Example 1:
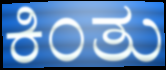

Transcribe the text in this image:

ಕಿಂತು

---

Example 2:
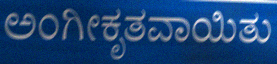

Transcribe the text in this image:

ಅಂಗೀಕೃತವಾಯಿತು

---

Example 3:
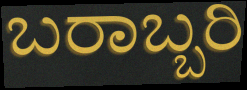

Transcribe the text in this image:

ಬರಾಬ್ಬರಿ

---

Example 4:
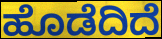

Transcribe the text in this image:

ಹೊಡೆದಿದೆ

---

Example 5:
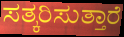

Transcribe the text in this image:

ಸತ್ಕರಿಸುತ್ತಾರೆ